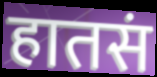
हातसं